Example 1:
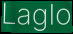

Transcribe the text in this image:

Laglo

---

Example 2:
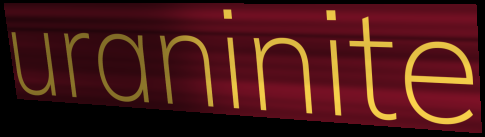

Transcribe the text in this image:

uraninite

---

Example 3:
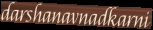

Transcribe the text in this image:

darshanavnadkarni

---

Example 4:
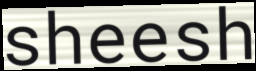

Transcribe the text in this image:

sheesh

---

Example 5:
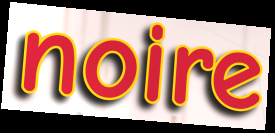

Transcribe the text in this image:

noire